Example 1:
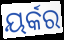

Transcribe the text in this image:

ୟର୍କର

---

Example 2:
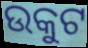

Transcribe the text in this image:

ଉକୁଟ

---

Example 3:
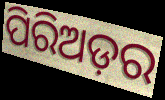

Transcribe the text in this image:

ପିରିଅଡ଼ର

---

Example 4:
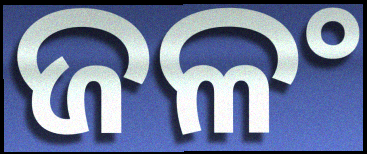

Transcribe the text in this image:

ଜଳଂ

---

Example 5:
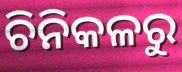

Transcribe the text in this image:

ଚିନିକଳରୁ